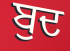
ਬੁਦ